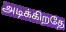
அடிக்கிறதே